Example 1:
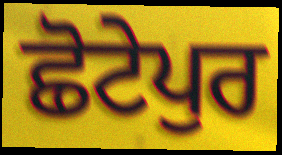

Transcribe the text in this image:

ਛੋਟੇਪੁਰ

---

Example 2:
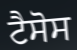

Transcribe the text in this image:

ਟੈਸੋਸ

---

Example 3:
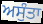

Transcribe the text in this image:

ਅਸੁੰਤਾ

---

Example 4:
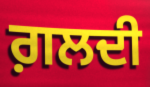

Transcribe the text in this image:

ਗ਼ਲਦੀ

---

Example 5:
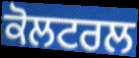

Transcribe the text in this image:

ਕੋਲਟਰਲ